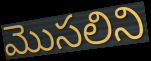
మొసలిని